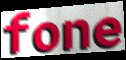
fone